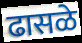
ढासळे